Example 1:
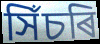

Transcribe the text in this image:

সিঁচৰি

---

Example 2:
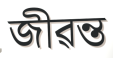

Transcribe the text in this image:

জীৱন্ত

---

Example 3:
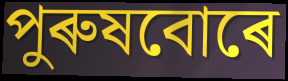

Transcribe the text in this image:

পুৰুষবোৰে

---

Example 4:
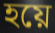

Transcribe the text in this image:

হয়ে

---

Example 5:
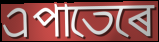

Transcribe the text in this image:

এপাতেৰে